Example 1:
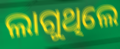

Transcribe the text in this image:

ଲାଗୁଥିଲେ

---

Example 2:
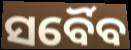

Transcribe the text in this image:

ସର୍ବୈବ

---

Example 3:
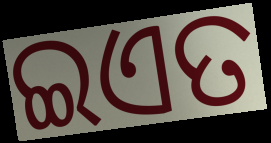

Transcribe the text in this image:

ଇଏତ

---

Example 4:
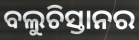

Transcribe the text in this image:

ବଲୁଚିସ୍ତାନର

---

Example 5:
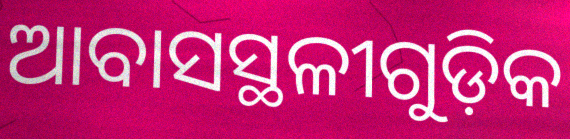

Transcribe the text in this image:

ଆବାସସ୍ଥଳୀଗୁଡ଼ିକ